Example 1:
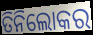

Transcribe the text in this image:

ତିନିଲୋକର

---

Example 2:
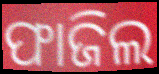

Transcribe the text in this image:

ଫାଜିଲ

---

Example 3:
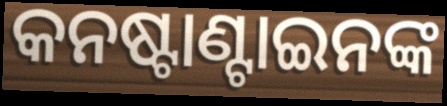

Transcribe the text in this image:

କନଷ୍ଟାଣ୍ଟାଇନଙ୍କ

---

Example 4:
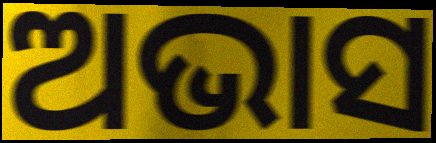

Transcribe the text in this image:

ଅଭାସ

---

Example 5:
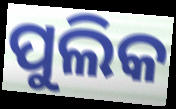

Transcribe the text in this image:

ପୁଲିକ